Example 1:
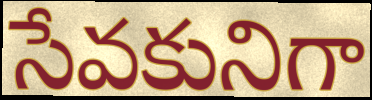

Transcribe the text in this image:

సేవకునిగా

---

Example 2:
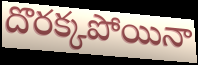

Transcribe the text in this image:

దొరక్కపోయినా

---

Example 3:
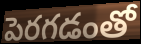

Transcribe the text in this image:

పెరగడంతో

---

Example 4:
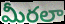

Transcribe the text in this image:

మీరలా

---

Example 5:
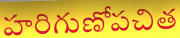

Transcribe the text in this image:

హరిగుణోపచిత